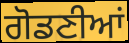
ਗੋਡਣੀਆਂ